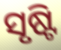
ସୃଷ୍ଟି